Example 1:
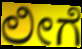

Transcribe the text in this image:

ಲೀಗೆ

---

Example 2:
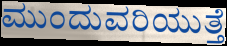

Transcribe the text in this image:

ಮುಂದುವರಿಯುತ್ತೆ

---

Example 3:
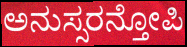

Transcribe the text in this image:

ಅನುಸ್ಸರನ್ತೋಪಿ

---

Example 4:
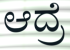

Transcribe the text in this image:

ಆದ್ರೆ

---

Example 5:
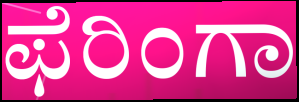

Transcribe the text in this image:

ಫೆರಿಂಗಾ